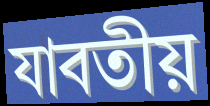
যাবতীয়